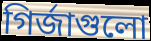
গির্জাগুলো